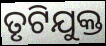
ତୃଟିଯୁକ୍ତ